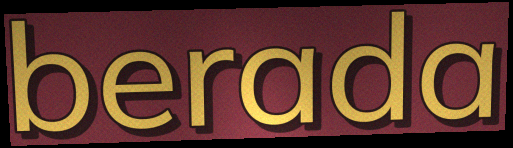
berada